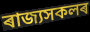
ৰাজ্যসকলৰ